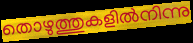
തൊഴുത്തുകളിൽനിന്നു